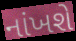
નાંખશે